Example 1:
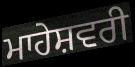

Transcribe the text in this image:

ਮਾਹੇਸ਼ਵਰੀ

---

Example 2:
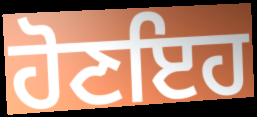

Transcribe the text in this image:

ਹੋਣਇਹ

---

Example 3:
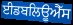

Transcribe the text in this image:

ਈਡਬਲਿਊਐੱਸ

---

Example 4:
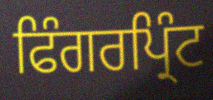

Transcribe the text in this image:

ਫਿੰਗਰਪ੍ਰਿੰਟ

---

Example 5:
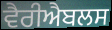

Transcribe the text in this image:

ਵੈਰੀਐਬਲਸ